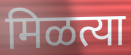
मिळत्या